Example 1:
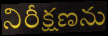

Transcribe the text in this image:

నిరీక్షణను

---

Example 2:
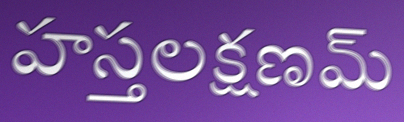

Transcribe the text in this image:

హస్తలక్షణమ్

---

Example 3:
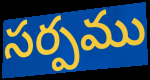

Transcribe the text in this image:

సర్పము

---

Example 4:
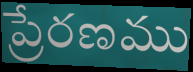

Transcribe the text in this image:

ప్రేరణము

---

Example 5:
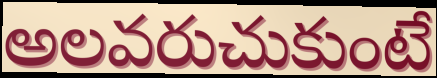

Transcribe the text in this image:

అలవరుచుకుంటే